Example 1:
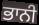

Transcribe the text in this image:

ਭਾਨੀ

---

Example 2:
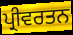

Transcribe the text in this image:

ਪ੍ਰੀਵਰਤਨ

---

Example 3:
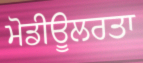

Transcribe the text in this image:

ਮੋਡੀਊਲਰਤਾ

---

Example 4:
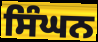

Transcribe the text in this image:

ਸਿੰਘਨ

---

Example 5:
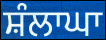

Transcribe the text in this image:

ਸ਼ੰਲਾਘਾ